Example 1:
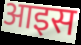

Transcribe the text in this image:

आइस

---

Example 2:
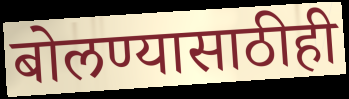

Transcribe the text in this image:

बोलण्यासाठीही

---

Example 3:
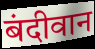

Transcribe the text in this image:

बंदीवान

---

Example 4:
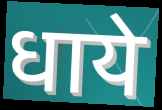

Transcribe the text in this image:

धाये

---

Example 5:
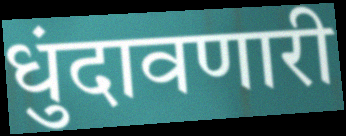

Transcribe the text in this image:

धुंदावणारी